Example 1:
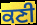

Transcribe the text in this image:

ਕਣੀ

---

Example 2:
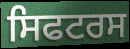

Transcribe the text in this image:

ਸਿਫਟਰਸ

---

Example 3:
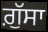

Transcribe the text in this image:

ਗ਼ੁੱਸਾ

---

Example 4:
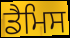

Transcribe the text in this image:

ਡੈਮਿਸ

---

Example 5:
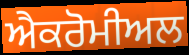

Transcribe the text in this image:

ਐਕਰੋਮੀਅਲ